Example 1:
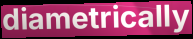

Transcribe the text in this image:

diametrically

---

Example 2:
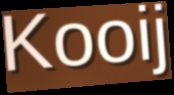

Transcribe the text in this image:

Kooij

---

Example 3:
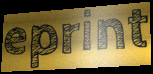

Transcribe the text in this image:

eprint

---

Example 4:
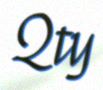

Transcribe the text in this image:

Qty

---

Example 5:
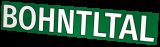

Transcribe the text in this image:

BOHNTLTAL